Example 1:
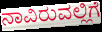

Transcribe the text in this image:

ನಾವಿರುವಲ್ಲಿಗೆ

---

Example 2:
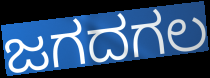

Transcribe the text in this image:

ಜಗದಗಲ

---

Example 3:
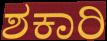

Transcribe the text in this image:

ಶಕಾರಿ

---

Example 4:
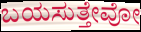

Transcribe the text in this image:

ಬಯಸುತ್ತೇವೋ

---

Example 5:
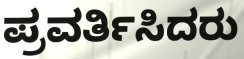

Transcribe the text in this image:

ಪ್ರವರ್ತಿಸಿದರು